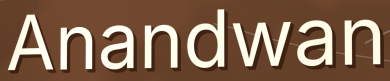
Anandwan